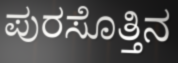
ಪುರಸೊತ್ತಿನ